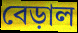
বেড়াল